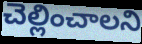
చెల్లించాలని